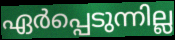
ഏർപ്പെടുന്നില്ല